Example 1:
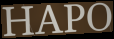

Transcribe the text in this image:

HAPO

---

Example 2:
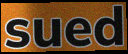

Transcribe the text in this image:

sued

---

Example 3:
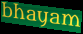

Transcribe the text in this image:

bhayam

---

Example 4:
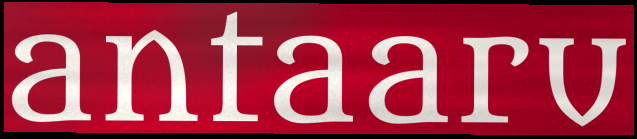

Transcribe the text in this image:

antaaru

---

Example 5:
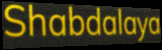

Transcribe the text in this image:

Shabdalaya